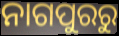
ନାଗପୁରରୁ